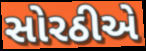
સોરઠીએ